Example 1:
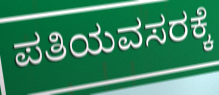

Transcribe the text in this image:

ಪತಿಯವಸರಕ್ಕೆ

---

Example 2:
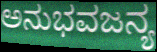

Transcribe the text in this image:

ಅನುಭವಜನ್ಯ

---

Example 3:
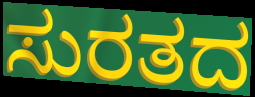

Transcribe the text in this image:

ಸುರತದ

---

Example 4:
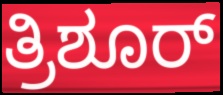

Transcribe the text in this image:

ತ್ರಿಶೂರ್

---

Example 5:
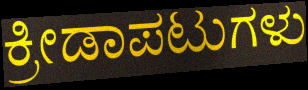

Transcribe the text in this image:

ಕ್ರೀಡಾಪಟುಗಳು